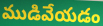
ముడివేయడం